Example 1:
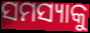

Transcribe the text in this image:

ସମସ୍ଯାକୁ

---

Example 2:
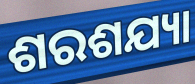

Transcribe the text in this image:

ଶରଶଯ୍ୟା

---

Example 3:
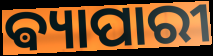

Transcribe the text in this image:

ଵ୍ୟାପାରୀ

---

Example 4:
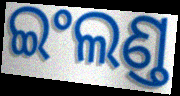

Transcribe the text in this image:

ଇଂଲଣ୍ଡ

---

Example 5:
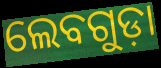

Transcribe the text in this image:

ଲେବଗୁଡ଼ା